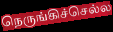
நெருங்கிச்செல்ல